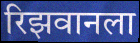
रिझवानला